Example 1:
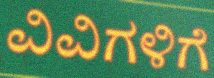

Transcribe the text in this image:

ವಿವಿಗಳಿಗೆ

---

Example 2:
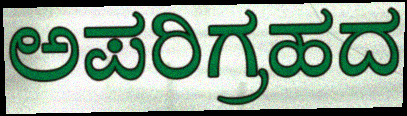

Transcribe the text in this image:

ಅಪರಿಗ್ರಹದ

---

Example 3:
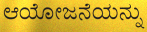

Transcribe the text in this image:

ಆಯೋಜನೆಯನ್ನು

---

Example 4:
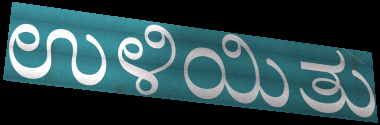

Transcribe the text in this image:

ಉಳಿಯಿತು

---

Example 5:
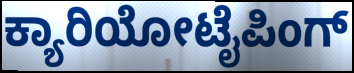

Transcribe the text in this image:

ಕ್ಯಾರಿಯೋಟೈಪಿಂಗ್